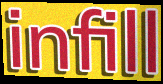
infill